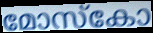
മോസ്‌കോ